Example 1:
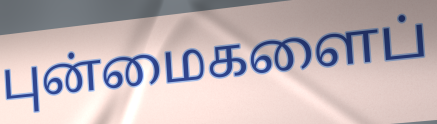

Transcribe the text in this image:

புன்மைகளைப்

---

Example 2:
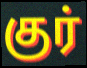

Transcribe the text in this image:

குர்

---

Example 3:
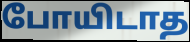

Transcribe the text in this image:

போயிடாத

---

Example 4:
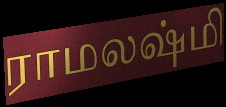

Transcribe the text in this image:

ராமலஷ்மி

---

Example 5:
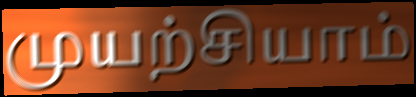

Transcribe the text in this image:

முயற்சியாம்